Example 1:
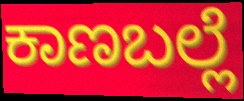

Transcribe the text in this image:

ಕಾಣಬಲ್ಲೆ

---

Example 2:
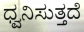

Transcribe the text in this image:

ಧ್ವನಿಸುತ್ತದೆ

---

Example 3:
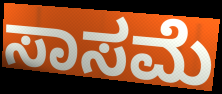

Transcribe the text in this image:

ಸಾಸಮೆ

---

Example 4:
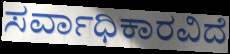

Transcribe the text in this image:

ಸರ್ವಾಧಿಕಾರವಿದೆ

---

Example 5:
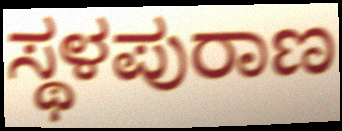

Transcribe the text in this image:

ಸ್ಥಳಪುರಾಣ